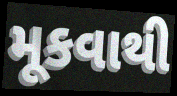
મૂકવાથી